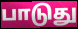
பாடுது